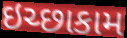
ઇચ્છાકામ